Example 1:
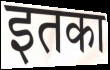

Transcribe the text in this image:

इतका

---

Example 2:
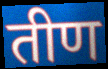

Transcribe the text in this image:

तीण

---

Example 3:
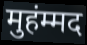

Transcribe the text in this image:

मुहंम्मद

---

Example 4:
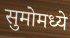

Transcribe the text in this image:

सुमोमध्ये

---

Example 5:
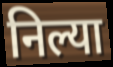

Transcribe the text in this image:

निल्या